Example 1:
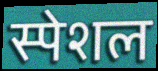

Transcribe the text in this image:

स्पेशल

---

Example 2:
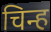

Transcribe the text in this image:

चिन्ह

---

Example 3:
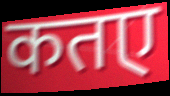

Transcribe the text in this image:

कतए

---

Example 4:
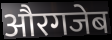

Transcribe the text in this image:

औरगजेब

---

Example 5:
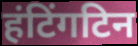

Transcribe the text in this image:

हंटिंगटिन